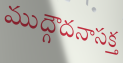
ముద్గౌదనాసక్త